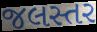
જલસ્તર